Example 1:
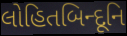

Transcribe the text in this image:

લોહિતબિન્દૂનિ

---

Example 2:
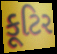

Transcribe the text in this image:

કૂટિર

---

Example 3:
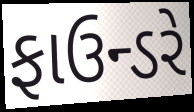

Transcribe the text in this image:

ફાઉન્ડરે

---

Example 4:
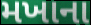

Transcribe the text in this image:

મખાના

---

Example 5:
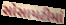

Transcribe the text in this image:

સોસાયટીમાં